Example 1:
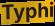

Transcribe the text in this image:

Typhi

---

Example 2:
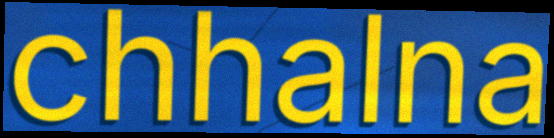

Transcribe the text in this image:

chhalna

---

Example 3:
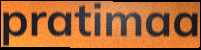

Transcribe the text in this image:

pratimaa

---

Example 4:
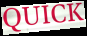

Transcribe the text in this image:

QUICK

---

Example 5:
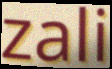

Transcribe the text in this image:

zali